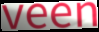
veen